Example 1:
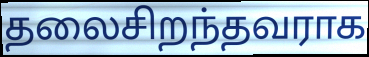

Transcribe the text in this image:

தலைசிறந்தவராக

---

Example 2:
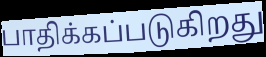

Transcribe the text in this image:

பாதிக்கப்படுகிறது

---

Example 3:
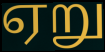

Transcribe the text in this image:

ஏறு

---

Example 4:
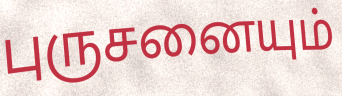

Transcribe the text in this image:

புருசனையும்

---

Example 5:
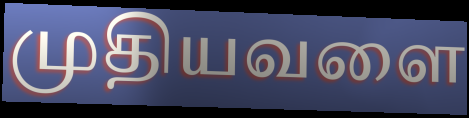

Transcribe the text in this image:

முதியவளை